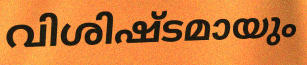
വിശിഷ്ടമായും